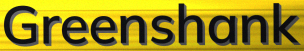
Greenshank